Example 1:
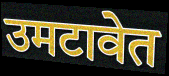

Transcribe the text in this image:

उमटावेत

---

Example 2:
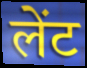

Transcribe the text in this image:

लेंट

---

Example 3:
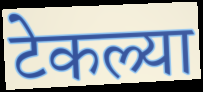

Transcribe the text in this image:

टेकल्या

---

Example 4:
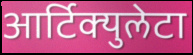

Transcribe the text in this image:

आर्टिक्युलेटा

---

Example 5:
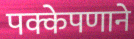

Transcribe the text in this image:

पक्केपणाने